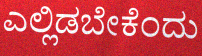
ಎಲ್ಲಿಡಬೇಕೆಂದು